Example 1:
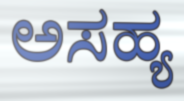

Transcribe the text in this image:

ಅಸಹ್ಯ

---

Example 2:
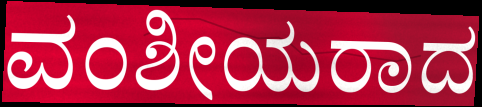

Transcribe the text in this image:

ವಂಶೀಯರಾದ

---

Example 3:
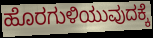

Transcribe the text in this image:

ಹೊರಗುಳಿಯುವುದಕ್ಕೆ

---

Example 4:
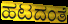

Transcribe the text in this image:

ಹಟದಂತೆ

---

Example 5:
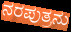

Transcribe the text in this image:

ನರಪುತ್ರನು